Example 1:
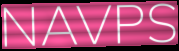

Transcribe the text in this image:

NAVPS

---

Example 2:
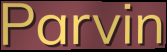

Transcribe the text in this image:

Parvin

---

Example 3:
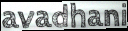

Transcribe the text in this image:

avadhani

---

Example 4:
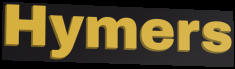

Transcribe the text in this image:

Hymers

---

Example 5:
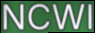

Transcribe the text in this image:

NCWI